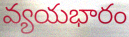
వ్యయభారం